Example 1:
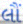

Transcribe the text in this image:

લૌં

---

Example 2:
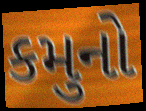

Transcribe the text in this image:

કમુનો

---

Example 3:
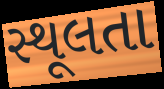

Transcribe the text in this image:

સ્થૂલતા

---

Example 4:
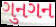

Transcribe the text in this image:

ગુનગન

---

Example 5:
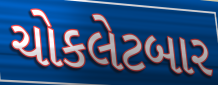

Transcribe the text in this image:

ચોકલેટબાર